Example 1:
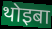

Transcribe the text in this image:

थोइबा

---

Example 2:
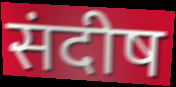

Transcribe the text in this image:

संदीष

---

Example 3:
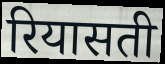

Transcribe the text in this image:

रियासती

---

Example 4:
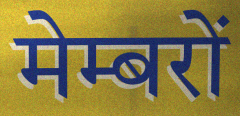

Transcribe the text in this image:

मेम्बरों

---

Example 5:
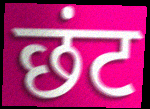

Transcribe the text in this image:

छंट